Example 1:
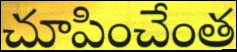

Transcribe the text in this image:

చూపించేంత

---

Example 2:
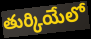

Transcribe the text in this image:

తుర్కియేలో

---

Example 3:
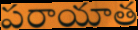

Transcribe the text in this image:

పరాయాత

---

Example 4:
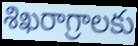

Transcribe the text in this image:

శిఖరాగ్రాలకు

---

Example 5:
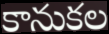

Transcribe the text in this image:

కానుకల